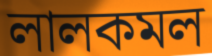
লালকমল